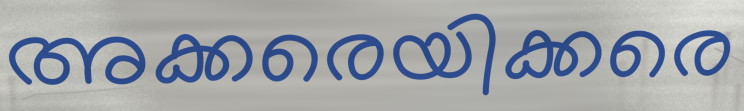
അക്കരെയിക്കരെ